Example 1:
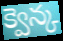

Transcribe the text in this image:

క్వెన్క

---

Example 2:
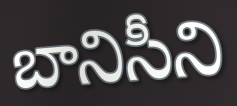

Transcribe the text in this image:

బానిసీని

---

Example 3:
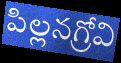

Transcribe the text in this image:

పిల్లనగ్రోవి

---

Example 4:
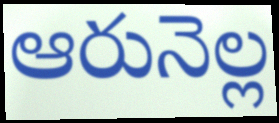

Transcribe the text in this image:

ఆరునెల్ల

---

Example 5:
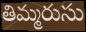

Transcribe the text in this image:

తిమ్మరుసు